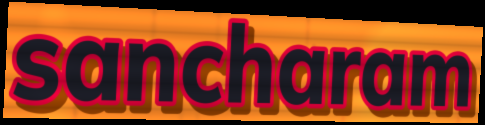
sancharam